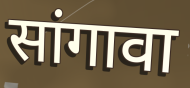
सांगावा